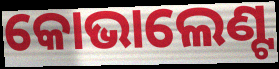
କୋଭାଲେଣ୍ଟ